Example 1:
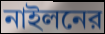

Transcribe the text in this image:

নাইলনের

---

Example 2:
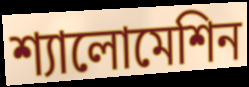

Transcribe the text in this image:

শ্যালোমেশিন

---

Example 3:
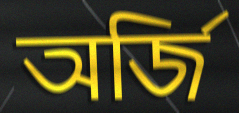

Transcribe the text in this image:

অর্জি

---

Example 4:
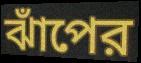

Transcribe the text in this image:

ঝাঁপের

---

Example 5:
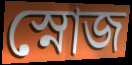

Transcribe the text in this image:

স্নোজ